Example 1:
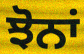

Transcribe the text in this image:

ਝੋਨਾਂ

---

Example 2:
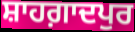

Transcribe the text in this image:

ਸ਼ਾਹਗ਼ਾਦਪੁਰ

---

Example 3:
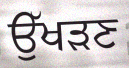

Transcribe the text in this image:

ਉੱਖੜਣ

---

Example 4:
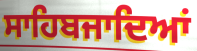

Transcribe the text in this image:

ਸਾਹਿਬਜਾਦਿਆਂ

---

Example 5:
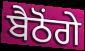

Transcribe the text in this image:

ਬੈਠੋਂਗੇ